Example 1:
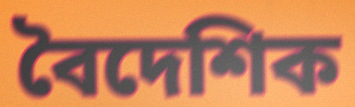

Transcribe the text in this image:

বৈদেশিক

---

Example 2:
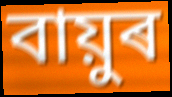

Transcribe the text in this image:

বায়ুৰ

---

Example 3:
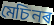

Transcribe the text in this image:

মেচিনৰ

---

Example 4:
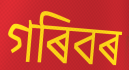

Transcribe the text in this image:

গৰিবৰ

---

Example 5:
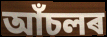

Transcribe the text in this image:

আঁচলৰ